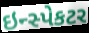
ઇન્સ્પેકટર